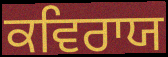
ਕਵਿਰਾਯ